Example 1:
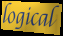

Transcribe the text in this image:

logical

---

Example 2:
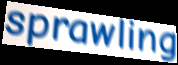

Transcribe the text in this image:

sprawling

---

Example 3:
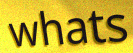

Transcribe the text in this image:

whats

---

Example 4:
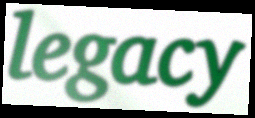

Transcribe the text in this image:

legacy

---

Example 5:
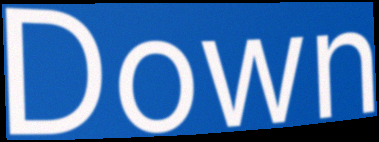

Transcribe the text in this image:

Down